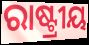
ରାଷ୍ଟ୍ରୀୟ